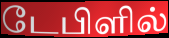
டேபிளில்